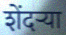
शेंदर्‍या